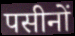
पसीनों